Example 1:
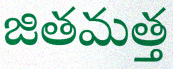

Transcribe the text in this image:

జితమత్త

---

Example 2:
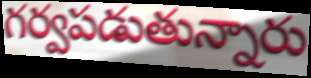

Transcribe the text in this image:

గర్వపడుతున్నారు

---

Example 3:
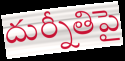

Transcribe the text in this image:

దుర్నీతిపై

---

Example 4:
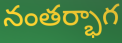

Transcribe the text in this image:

నంతర్భాగ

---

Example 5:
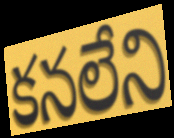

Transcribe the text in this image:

కనలేని